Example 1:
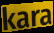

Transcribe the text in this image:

kara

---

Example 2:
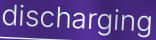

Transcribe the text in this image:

discharging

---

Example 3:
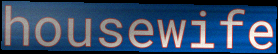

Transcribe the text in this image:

housewife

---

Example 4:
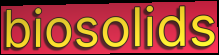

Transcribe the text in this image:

biosolids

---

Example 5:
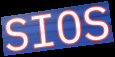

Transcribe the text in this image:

SIOS